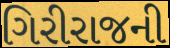
ગિરીરાજની